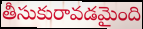
తీసుకురావడమైంది